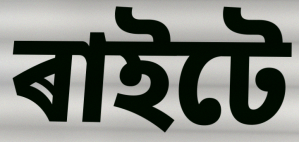
ৰাইটে